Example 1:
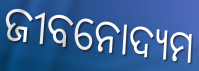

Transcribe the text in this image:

ଜୀବନୋଦ୍ୟମ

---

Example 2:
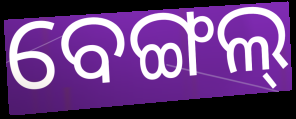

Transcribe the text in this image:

ବେଙ୍ଗଲ୍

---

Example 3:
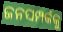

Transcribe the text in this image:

ଜନସମ୍ପର୍କକୁ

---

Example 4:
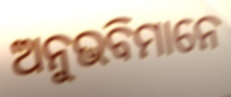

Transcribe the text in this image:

ଅନୁଭବିମାନେ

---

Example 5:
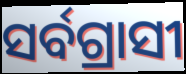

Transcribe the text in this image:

ସର୍ବଗ୍ରାସୀ